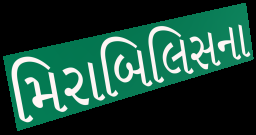
મિરાબિલિસના